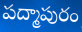
పద్మాపురం